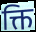
क्ति